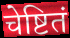
चेष्टितं